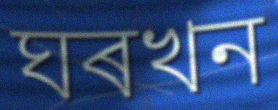
ঘৰখন